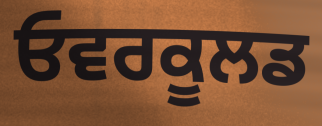
ਓਵਰਕੂਲਡ